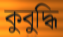
কুবুদ্ধি